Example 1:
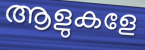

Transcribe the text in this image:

ആളുകളേ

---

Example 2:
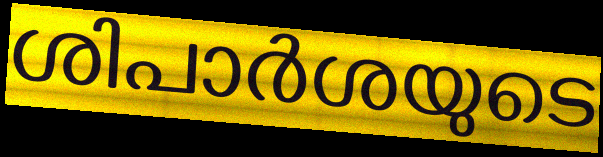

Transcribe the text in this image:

ശിപാർശയുടെ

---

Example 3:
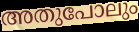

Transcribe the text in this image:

അതുപോലും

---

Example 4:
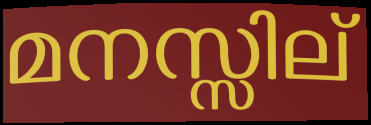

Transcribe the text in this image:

മനസ്സില്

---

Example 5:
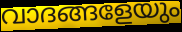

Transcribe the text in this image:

വാദങ്ങളേയും